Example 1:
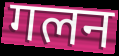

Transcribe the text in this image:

गलन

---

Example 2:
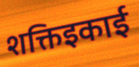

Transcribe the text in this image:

शक्तिइकाई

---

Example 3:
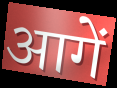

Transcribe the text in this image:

आगें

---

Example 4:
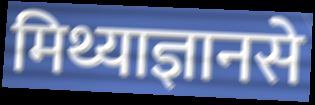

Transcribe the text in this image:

मिथ्याज्ञानसे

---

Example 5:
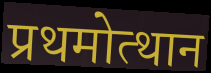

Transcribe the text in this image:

प्रथमोत्थान